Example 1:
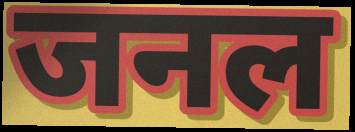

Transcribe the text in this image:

जनल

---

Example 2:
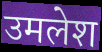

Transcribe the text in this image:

उमलेश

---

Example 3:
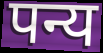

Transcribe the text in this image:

पन्य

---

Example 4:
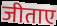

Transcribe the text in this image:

जीताए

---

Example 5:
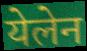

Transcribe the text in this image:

येलेन